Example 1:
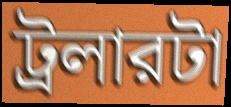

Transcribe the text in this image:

ট্রলারটা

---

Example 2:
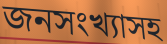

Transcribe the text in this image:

জনসংখ্যাসহ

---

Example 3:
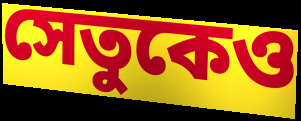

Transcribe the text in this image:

সেতুকেও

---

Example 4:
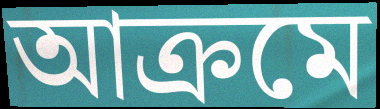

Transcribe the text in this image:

আক্রমে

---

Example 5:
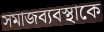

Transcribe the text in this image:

সমাজব্যবস্থাকে